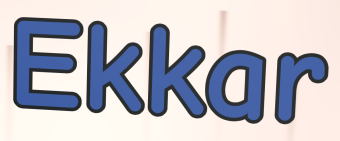
Ekkar